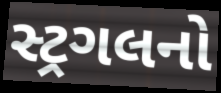
સ્ટ્રગલનો